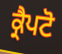
ਕ੍ਰੈਪਟੋ